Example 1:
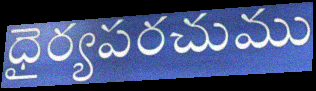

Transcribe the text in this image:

ధైర్యపరచుము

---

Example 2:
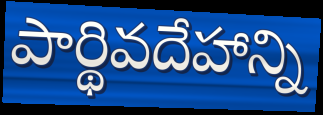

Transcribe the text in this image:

పార్థివదేహాన్ని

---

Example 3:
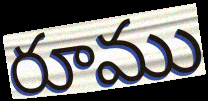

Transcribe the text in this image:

రూము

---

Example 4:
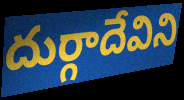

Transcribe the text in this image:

దుర్గాదేవిని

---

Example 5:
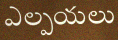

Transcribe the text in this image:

ఎల్పయలు